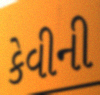
કેવીની